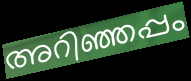
അറിഞ്ഞപ്പം